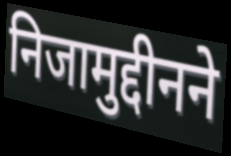
निजामुद्दीनने